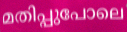
മതിപ്പുപോലെ